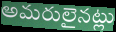
అమరులైనట్లు